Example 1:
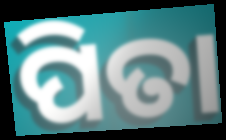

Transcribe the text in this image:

ପିତା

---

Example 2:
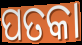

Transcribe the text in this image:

ପତକା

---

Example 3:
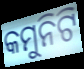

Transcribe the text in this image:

କମୁନିଟି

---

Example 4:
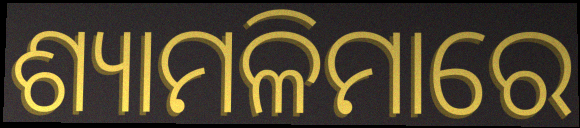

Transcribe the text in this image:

ଶ୍ୟାମଳିମାରେ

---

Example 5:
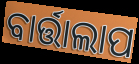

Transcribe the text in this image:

ବାର୍ତ୍ତାଲାପ